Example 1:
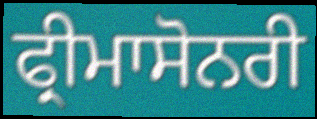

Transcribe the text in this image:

ਫ੍ਰੀਮਾਸੋਨਰੀ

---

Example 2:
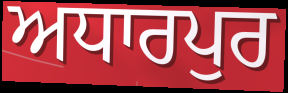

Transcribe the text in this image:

ਅਧਾਰਪੁਰ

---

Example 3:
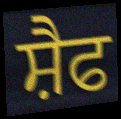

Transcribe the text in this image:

ਸ਼ੈਫ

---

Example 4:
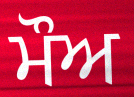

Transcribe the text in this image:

ਮੌਅ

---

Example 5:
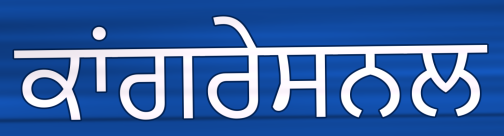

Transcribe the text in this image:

ਕਾਂਗਰੇਸਨਲ